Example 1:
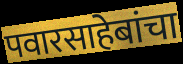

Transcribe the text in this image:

पवारसाहेबांचा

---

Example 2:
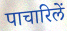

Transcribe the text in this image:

पाचारिलें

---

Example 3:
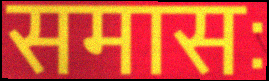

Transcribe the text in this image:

समासः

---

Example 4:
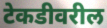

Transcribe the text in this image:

टेकडीवरील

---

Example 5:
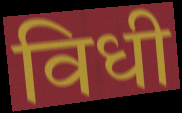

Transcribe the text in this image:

विधी